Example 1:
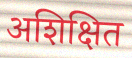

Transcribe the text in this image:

अशिक्षित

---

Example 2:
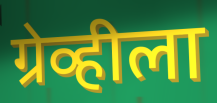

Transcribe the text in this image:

ग्रेव्हीला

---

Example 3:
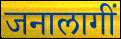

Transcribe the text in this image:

जनालागीं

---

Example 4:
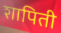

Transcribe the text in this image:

शापिती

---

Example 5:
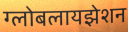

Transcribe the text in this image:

ग्लोबलायझेशन